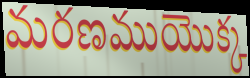
మరణముయొక్క